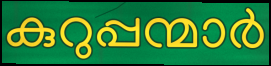
കുറുപ്പന്മാർ